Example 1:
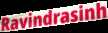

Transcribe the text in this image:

Ravindrasinh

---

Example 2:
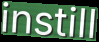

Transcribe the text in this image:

instill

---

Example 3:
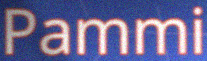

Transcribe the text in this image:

Pammi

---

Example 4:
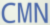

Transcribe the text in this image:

CMN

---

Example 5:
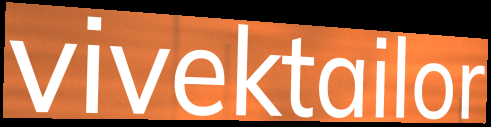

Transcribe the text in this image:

vivektailor